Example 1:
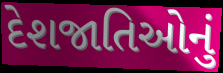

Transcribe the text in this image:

દેશજાતિઓનું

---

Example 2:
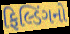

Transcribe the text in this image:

ફિલ્ડિંગનો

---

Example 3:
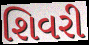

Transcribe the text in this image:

શિવરી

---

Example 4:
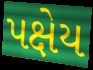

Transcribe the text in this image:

પક્ષેય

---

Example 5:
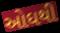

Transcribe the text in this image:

ઓઘથી